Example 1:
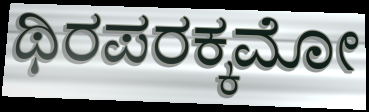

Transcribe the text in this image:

ಥಿರಪರಕ್ಕಮೋ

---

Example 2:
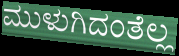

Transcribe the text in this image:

ಮುಳುಗಿದಂತೆಲ್ಲ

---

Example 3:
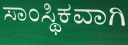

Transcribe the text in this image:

ಸಾಂಸ್ಥಿಕವಾಗಿ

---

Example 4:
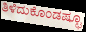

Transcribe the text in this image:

ತಿಳಿದುಕೊಂಡಷ್ಟೂ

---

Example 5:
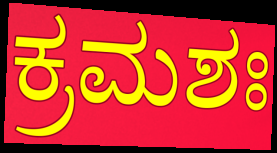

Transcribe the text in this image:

ಕ್ರಮಶಃ